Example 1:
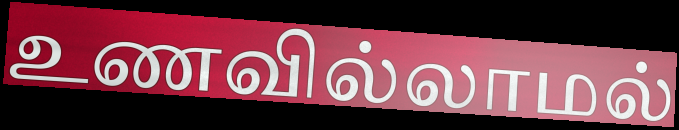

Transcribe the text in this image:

உணவில்லாமல்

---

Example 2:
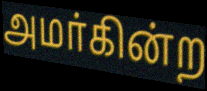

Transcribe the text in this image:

அமர்கின்ற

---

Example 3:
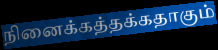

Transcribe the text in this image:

நினைக்கத்தக்கதாகும்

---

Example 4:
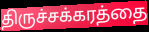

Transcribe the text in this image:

திருச்சக்கரத்தை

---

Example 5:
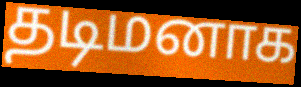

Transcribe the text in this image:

தடிமனாக